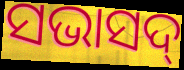
ସଭାସଦ୍